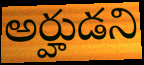
అర్హుడని